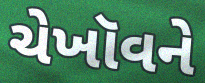
ચેખૉવને